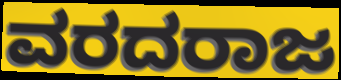
ವರದರಾಜ